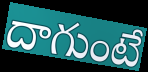
దాగుంటే